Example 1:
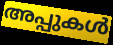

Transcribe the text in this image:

അപ്പുകൾ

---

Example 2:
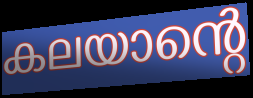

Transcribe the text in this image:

കലയാന്റെ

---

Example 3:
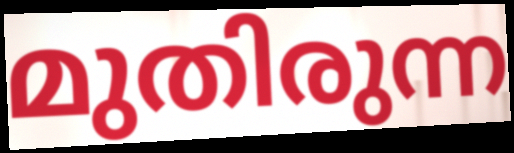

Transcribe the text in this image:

മുതിരുന്ന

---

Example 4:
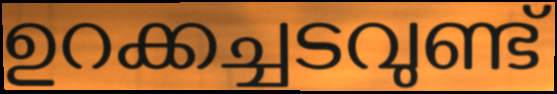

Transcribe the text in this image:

ഉറക്കച്ചടവുണ്ട്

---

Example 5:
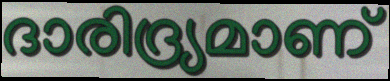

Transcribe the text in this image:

ദാരിദ്ര്യമാണ്